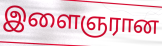
இளைஞரான